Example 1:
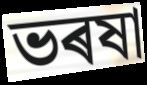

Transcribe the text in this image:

ভৰষা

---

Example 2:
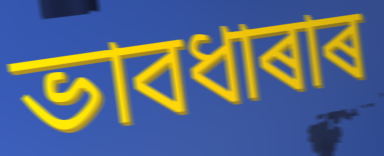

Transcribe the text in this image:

ভাবধাৰাৰ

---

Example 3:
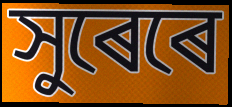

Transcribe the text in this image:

সুৰেৰে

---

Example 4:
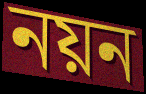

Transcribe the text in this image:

নয়ন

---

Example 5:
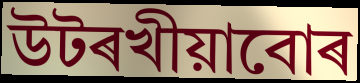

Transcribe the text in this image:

উটৰখীয়াবোৰ